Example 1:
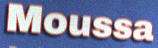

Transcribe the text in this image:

Moussa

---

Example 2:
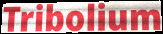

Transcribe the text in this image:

Tribolium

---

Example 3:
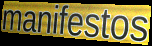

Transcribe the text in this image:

manifestos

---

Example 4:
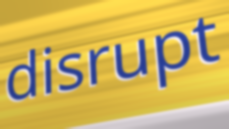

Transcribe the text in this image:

disrupt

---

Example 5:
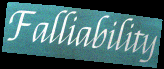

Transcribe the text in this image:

Falliability